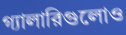
গ্যালারিগুলোও